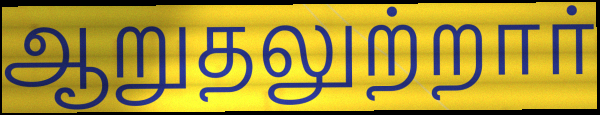
ஆறுதலுற்றார்